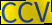
CCV